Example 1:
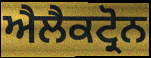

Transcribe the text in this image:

ਐਲੈਕਟ੍ਰੋਨ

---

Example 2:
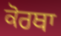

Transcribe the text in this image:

ਕੋਰਥਾ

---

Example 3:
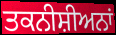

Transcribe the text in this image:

ਤਕਨੀਸ਼ੀਅਨਾਂ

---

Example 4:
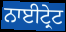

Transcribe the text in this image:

ਨਾਈਟ੍ਰੇਟ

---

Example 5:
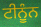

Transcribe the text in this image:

ਟੀਨੂੰਨ